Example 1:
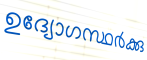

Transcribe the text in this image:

ഉദ്യോഗസ്ഥർക്കു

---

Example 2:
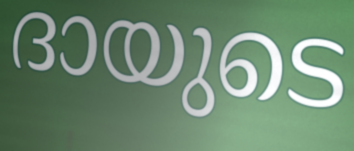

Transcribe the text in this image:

ദായുടെ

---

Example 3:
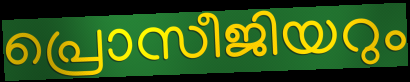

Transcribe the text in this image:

പ്രൊസീജിയറും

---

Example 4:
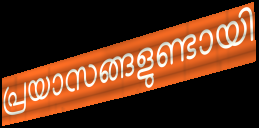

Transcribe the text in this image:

പ്രയാസങ്ങളുണ്ടായി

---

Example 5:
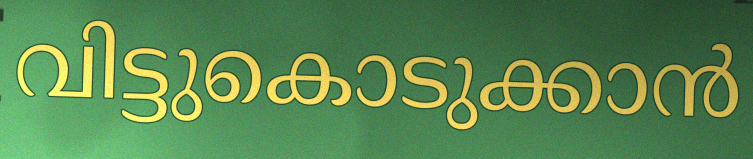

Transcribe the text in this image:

വിട്ടുകൊടുക്കാൻ